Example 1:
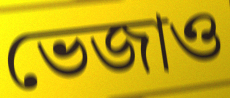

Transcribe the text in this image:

ভেজাও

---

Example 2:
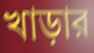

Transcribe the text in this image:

খাড়ার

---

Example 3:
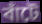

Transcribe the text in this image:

বাঁটে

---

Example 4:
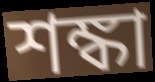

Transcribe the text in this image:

শঙ্কা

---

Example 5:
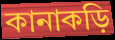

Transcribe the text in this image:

কানাকড়ি